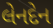
લેનદેન